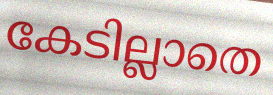
കേടില്ലാതെ